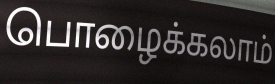
பொழைக்கலாம்